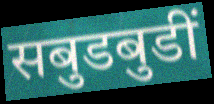
सबुडबुडीं